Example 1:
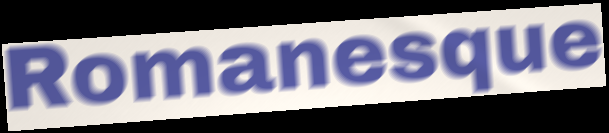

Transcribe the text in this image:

Romanesque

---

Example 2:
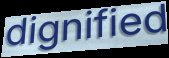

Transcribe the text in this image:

dignified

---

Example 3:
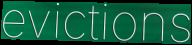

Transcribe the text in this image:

evictions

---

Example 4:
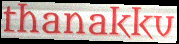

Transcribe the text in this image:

thanakku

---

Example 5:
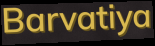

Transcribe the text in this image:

Barvatiya